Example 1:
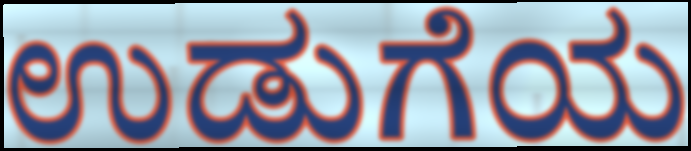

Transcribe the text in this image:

ಉಡುಗೆಯ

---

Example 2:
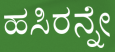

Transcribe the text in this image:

ಹಸಿರನ್ನೇ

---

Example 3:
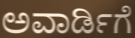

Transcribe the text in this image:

ಅವಾರ್ಡಿಗೆ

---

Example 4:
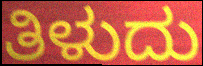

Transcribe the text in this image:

ತಿಳುದು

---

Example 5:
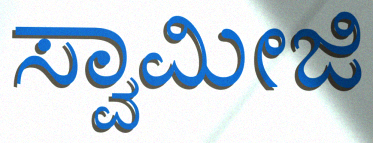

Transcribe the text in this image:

ಸ್ವಾಮೀಜಿ